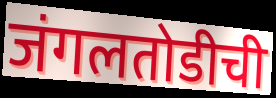
जंगलतोडीची